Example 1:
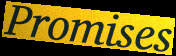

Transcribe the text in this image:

Promises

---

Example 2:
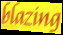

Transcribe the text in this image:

blazing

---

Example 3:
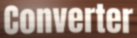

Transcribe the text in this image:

Converter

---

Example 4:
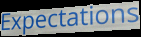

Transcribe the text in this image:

Expectations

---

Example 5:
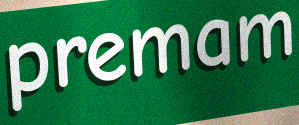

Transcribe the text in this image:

premam